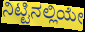
ನಿಟ್ಟಿನಲ್ಲಿಯೇ